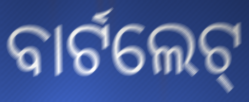
ବାର୍ଟଲେଟ୍